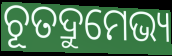
ଚୂତଦ୍ରୁମେଭ୍ୟ